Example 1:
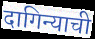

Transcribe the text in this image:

दागिन्याची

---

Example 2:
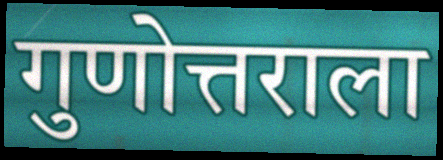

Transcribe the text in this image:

गुणोत्तराला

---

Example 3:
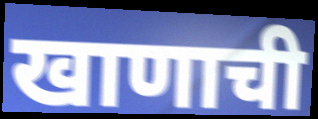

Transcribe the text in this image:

खाणाची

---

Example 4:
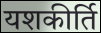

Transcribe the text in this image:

यशकीर्ति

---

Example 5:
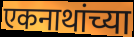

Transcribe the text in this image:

एकनाथांच्या